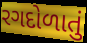
રગદોળાતું